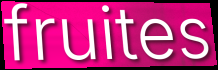
fruites